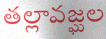
తల్లావజ్ఘల